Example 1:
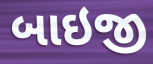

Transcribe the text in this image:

બાઇજી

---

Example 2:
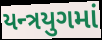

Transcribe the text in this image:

યન્ત્રયુગમાં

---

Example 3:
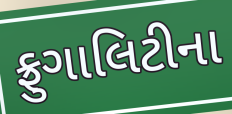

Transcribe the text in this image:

ફ્રુગાલિટીના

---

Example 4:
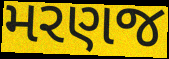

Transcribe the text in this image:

મરણજ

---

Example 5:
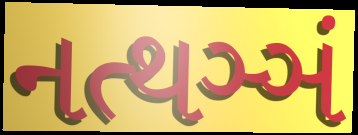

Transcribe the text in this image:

નત્થઞ્ઞં